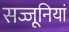
सज्जूनियां